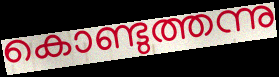
കൊണ്ടുത്തന്നു